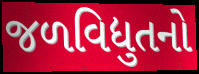
જળવિદ્યુતનો